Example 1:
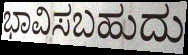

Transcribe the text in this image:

ಭಾವಿಸಬಹುದು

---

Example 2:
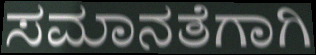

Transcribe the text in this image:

ಸಮಾನತೆಗಾಗಿ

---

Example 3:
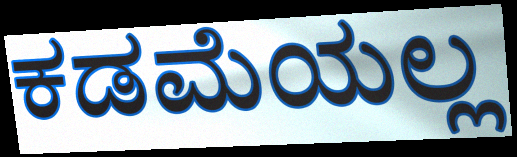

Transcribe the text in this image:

ಕಡಮೆಯಲ್ಲ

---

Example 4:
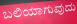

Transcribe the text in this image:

ಬಲಿಯಾಗುವುದು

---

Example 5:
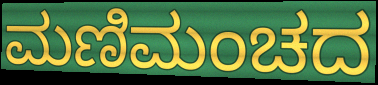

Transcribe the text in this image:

ಮಣಿಮಂಚದ